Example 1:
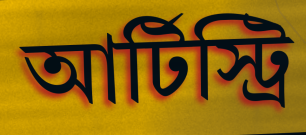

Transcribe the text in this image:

আর্টিস্ট্রি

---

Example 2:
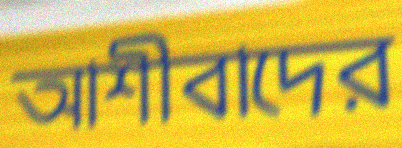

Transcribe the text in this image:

আশীবাদের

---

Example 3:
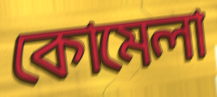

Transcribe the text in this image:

কোমেলা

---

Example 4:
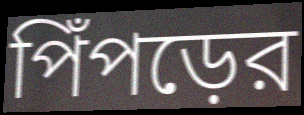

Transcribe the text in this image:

পিঁপড়ের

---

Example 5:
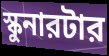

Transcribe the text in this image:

স্কুনারটার